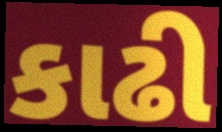
કાઢી